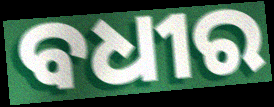
ବଧୀର